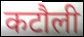
कटौली